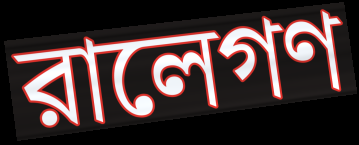
রালেগণ